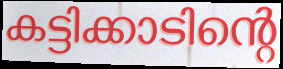
കട്ടിക്കാടിന്റെ